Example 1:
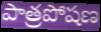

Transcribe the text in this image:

పాత్రపోషణ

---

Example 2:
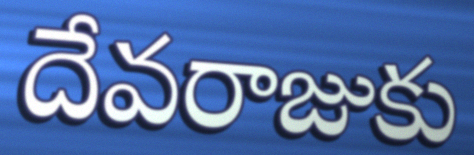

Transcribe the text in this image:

దేవరాజుకు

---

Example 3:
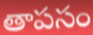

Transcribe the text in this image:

తాపసం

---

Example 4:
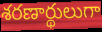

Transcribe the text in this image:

శరణార్థులుగా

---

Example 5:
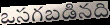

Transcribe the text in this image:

ఒసగబడినది